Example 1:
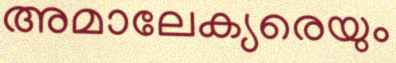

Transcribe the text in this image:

അമാലേക്യരെയും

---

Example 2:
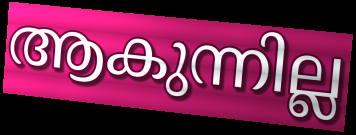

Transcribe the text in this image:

ആകുന്നില്ല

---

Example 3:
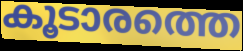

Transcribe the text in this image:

കൂടാരത്തെ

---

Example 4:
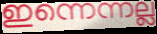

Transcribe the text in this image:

ഇന്നെന്നല്ല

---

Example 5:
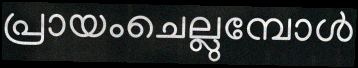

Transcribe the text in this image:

പ്രായംചെല്ലുമ്പോൾ